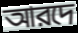
আরদে